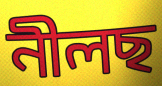
নীলছ